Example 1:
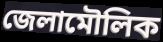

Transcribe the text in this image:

জেলামৌলিক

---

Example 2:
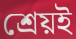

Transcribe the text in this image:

শ্রেয়ই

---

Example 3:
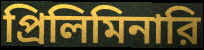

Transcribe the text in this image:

প্রিলিমিনারি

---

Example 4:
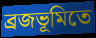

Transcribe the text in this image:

ব্রজভূমিতে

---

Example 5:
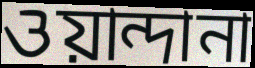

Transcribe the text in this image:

ওয়ান্দানা